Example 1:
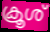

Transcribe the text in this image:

ക്രൂശ്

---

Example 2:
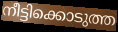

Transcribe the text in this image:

നീട്ടിക്കൊടുത്ത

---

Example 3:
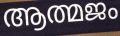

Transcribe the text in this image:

ആത്മജം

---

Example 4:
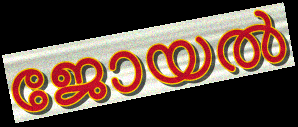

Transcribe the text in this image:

ജോയൽ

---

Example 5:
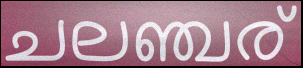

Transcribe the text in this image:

ചലഞ്ചര്